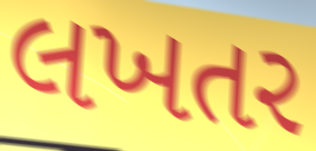
લખતર